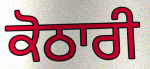
ਕੋਠਾਰੀ